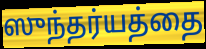
ஸுந்தர்யத்தை